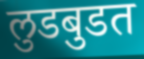
लुडबुडत